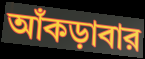
আঁকড়াবার